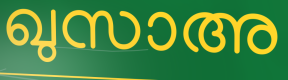
ഖുസാഅ